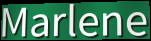
Marlene